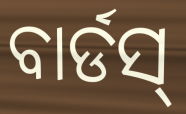
ବାର୍ଡସ୍